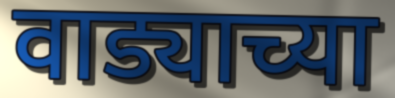
वाड्याच्या